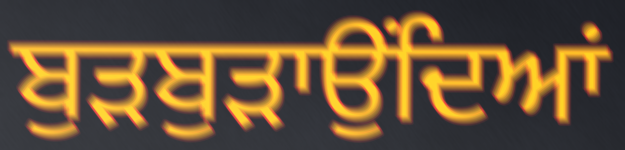
ਬੁੜਬੁੜਾਉਂਦਿਆਂ